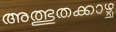
അത്ഭുതക്കാഴ്ച